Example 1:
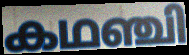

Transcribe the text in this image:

കഥഞ്ചി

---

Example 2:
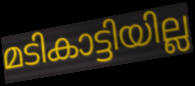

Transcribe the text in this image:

മടികാട്ടിയില്ല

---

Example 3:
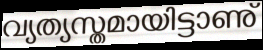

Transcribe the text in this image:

വ്യത്യസ്തമായിട്ടാണു്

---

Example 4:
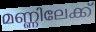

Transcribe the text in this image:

മണ്ണിലേക്ക്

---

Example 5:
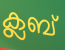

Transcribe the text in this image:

ക്ലബ്